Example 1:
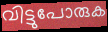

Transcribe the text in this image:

വിട്ടുപോരുക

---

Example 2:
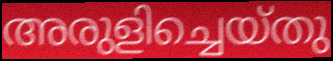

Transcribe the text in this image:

അരുളിച്ചെയ്തു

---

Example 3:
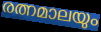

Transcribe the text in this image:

രത്നമാലയും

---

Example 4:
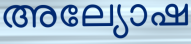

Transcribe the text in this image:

അല്യോഷ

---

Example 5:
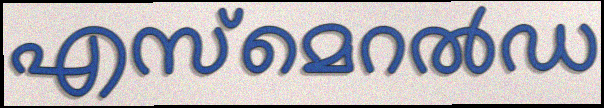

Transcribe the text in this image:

എസ്മെറൽഡ